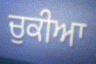
ਚੁਕੀਆ